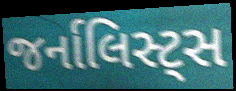
જર્નાલિસ્ટ્સ